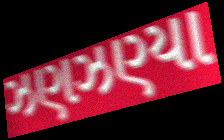
ઝણઝણ્યા